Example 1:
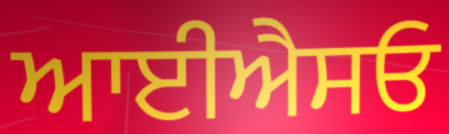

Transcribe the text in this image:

ਆਈਐਸਓ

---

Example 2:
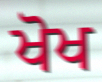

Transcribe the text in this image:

ਖੋਖ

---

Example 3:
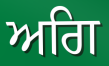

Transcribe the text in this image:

ਅਗਿ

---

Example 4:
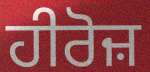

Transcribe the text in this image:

ਹੀਰੋਜ਼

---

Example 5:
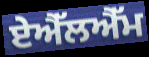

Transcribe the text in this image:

ਏਐੱਲਐੱਮ